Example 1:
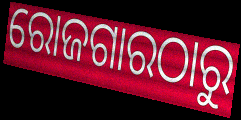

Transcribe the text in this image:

ରୋଜଗାରଠାରୁ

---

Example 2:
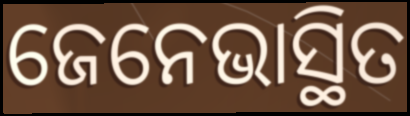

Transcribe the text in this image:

ଜେନେଭାସ୍ଥିତ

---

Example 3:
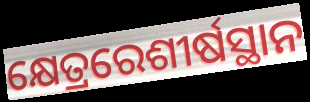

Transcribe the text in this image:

କ୍ଷେତ୍ରରେଶୀର୍ଷସ୍ଥାନ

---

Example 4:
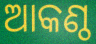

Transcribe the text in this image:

ଆକଣ୍ଠ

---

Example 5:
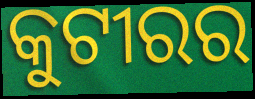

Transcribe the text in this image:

କୁଟୀରର